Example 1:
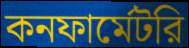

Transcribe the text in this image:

কনফার্মেটরি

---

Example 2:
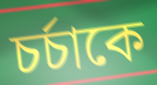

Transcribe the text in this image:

চর্চাকে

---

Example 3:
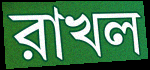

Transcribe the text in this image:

রাখল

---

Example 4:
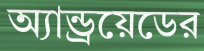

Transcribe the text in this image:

অ্যান্ড্রয়েডের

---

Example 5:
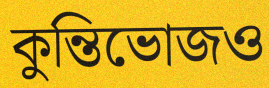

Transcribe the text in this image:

কুন্তিভোজও